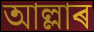
আল্লাৰ